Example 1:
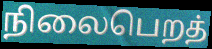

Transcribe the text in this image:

நிலைபெறத்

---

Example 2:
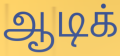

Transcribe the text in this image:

ஆடிக்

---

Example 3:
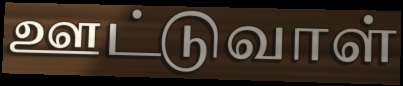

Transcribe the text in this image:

ஊட்டுவாள்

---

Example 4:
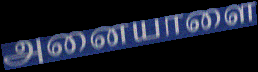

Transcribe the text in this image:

அனையாளை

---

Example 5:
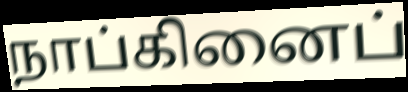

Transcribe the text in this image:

நாப்கினைப்